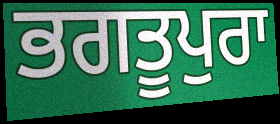
ਭਗਤੂਪੁਰਾ